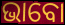
ଭାବୋ